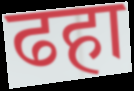
ढहा